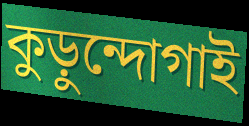
কুড়ুন্দোগাই